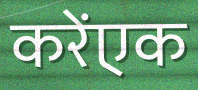
करेंएक